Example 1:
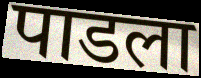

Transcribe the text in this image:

पाडला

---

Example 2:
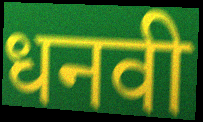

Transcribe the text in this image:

धनवी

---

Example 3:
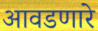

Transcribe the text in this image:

आवडणारे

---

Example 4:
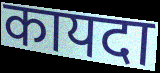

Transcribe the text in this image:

कायदा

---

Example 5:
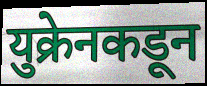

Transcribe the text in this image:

युक्रेनकडून